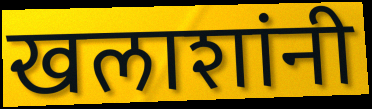
खलाशांनी